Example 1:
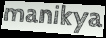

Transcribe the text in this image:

manikya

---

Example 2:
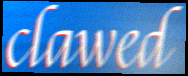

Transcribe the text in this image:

clawed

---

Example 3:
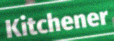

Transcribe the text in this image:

Kitchener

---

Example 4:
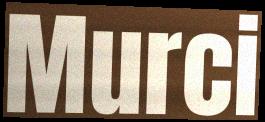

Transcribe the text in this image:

Murci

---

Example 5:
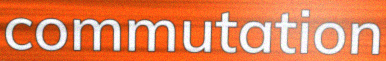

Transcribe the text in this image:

commutation